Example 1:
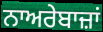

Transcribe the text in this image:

ਨਾਅਰੇਬਾਜ਼ਾਂ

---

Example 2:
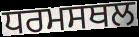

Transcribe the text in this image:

ਧਰਮਸਥਲ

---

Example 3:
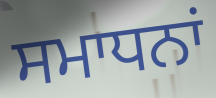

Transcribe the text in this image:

ਸਮਾਧਨਾਂ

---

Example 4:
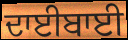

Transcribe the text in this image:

ਦਾਈਬਾਈ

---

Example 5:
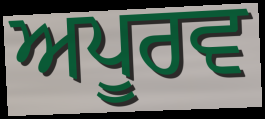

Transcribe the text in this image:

ਅਪੂਰਵ